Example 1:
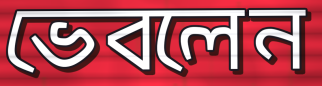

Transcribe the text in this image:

ভেবলেন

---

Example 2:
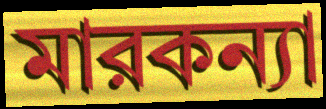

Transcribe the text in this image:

মারকন্যা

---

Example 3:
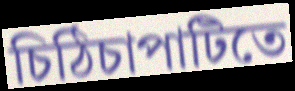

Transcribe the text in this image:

চিঠিচাপাটিতে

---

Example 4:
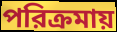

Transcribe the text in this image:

পরিক্রমায়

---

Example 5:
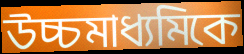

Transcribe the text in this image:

উচ্চমাধ্যমিকে